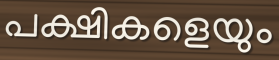
പക്ഷികളെയും